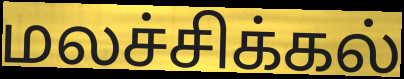
மலச்சிக்கல்